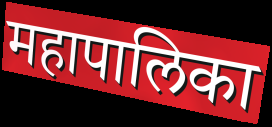
महापालिका